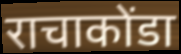
राचाकोंडा